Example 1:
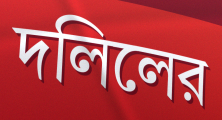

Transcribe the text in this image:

দলিলের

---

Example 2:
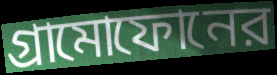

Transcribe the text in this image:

গ্রামোফোনের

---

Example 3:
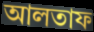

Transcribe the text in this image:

আলতাফ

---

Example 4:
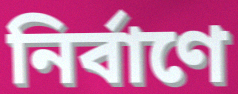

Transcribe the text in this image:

নির্বাণে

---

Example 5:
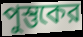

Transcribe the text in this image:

পুস্তুকের